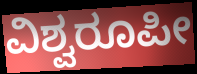
ವಿಶ್ವರೂಪೀ